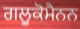
ਗਲੂਕੋਮੈਨਨ